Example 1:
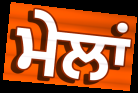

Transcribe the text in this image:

ਮੇਲਾਂ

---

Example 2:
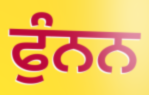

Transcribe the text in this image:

ਫੁੰਨਨ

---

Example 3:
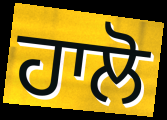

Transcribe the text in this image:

ਹਾਲੋ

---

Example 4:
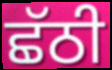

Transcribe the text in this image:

ਛੱਠੀ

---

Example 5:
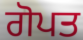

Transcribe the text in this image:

ਗੋਪਤ